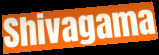
Shivagama